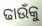
ଢାଉଁକୁ